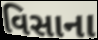
વિસાના